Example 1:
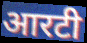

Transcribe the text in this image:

आरटी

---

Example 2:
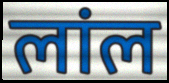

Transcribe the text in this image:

लांल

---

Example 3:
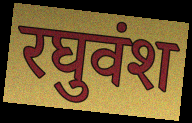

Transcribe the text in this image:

रघुवंश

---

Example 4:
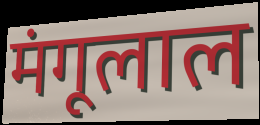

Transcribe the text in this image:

मंगूलाल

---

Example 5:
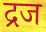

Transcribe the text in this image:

द्रज